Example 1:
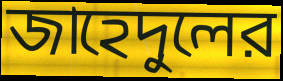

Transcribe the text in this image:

জাহেদুলের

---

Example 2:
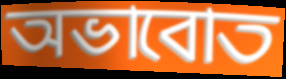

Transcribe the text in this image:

অভাবোত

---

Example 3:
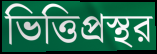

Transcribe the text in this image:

ভিত্তিপ্রস্থর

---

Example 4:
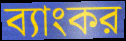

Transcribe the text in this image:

ব্যাংকর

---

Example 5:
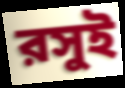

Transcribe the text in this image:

রসুই